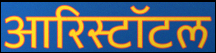
आरिस्टॉटल